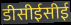
डीसीईसीई